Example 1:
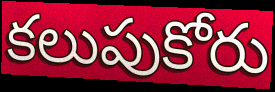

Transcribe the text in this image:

కలుపుకోరు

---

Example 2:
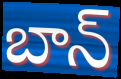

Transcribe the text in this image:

బాన్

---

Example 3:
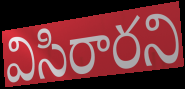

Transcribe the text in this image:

విసిరారని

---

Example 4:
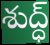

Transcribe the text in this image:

శుద్ధ్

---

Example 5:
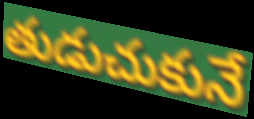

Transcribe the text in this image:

తుడుచుకునే